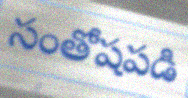
సంతోషపడి